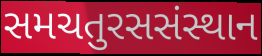
સમચતુરસસંસ્થાન